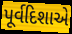
પૂર્વદિશાએ